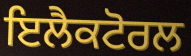
ਇਲੈਕਟੋਰਲ